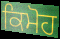
ਕਿਮੋਹ